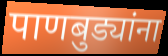
पाणबुड्यांना